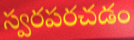
స్వరపరచడం